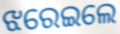
ଝରେଇଲେ